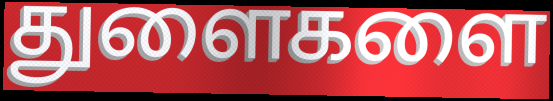
துளைகளை